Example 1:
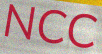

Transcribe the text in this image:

NCC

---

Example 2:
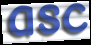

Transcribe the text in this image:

asc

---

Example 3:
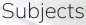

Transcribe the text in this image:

Subjects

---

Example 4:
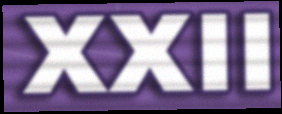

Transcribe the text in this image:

XXII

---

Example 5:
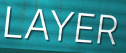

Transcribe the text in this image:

LAYER